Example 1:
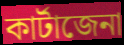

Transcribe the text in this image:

কাৰ্টাজেনা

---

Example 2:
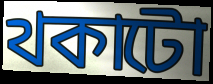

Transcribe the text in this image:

থকাটো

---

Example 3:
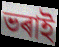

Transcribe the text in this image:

ভৰাই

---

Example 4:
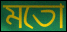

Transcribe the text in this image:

মতো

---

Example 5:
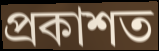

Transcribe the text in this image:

প্ৰকাশত